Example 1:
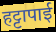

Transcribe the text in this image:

हट्टापाई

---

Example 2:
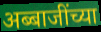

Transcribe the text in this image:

अब्बाजींच्या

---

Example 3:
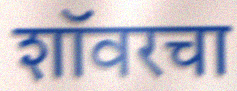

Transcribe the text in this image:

शॉवरचा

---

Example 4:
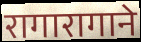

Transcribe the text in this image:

रागारागाने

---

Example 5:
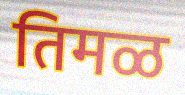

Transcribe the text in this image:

तिमळ